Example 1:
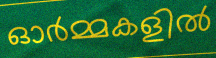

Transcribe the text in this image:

ഓർമ്മകളിൽ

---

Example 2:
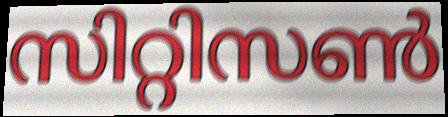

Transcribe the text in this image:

സിറ്റിസൺ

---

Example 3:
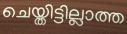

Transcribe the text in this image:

ചെയ്തിട്ടില്ലാത്ത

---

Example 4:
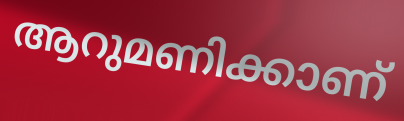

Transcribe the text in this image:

ആറുമണിക്കാണ്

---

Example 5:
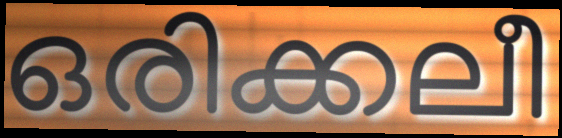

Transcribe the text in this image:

ഒരിക്കലീ